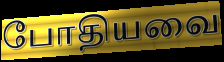
போதியவை